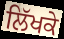
ਲਿੱਖਕੇ